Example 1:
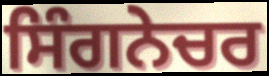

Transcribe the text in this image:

ਸਿੰਗਨੇਚਰ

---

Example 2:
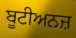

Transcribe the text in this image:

ਬੂਟੀਅਨਜ਼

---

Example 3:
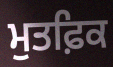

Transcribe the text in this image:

ਮੁਤਫ਼ਿਕ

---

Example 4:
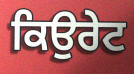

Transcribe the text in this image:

ਕਿਉਰੇਟ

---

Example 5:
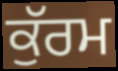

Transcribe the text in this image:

ਕੁੱਰਮ